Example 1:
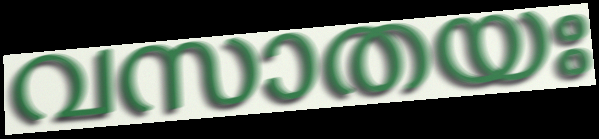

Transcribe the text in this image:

വസാതയഃ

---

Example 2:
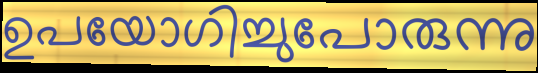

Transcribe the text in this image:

ഉപയോഗിച്ചുപോരുന്നു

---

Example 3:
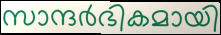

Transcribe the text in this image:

സാന്ദർഭികമായി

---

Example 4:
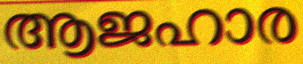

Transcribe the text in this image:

ആജഹാര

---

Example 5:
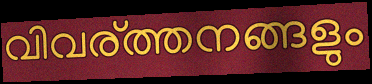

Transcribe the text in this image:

വിവര്ത്തനങ്ങളും